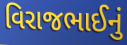
વિરાજભાઈનું